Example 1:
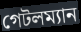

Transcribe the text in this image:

গেটলম্যান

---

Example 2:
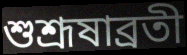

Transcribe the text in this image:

শুশ্রূষাব্রতী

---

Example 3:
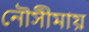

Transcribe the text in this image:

নৌসীমায়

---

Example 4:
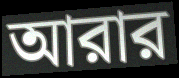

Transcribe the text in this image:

আরার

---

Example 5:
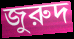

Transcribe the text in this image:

জুরুদ